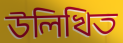
উলিখিত